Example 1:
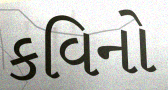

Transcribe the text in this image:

કવિનો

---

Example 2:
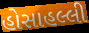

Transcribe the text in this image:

હોસાહલ્લી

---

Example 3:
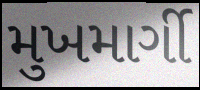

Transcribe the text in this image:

મુખમાર્ગી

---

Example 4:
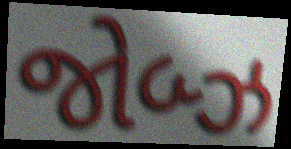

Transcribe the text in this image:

જોબ્ઝ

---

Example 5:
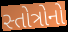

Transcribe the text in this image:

સ્તોત્રોનો